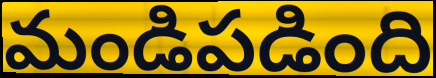
మండిపడింది